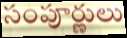
సంపూర్ణులు